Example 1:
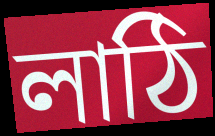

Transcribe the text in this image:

লাঠি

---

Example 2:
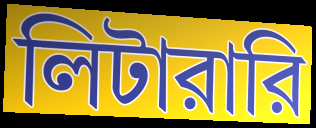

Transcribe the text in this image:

লিটারারি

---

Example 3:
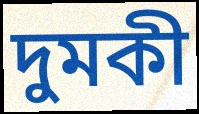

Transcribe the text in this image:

দুমকী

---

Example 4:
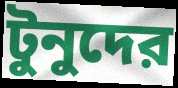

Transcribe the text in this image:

টুনুদের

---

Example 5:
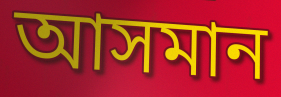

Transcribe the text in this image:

আসমান